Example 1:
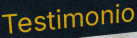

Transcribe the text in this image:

Testimonio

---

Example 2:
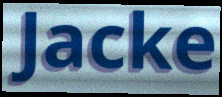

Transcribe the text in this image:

Jacke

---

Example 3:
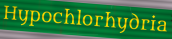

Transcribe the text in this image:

Hypochlorhydria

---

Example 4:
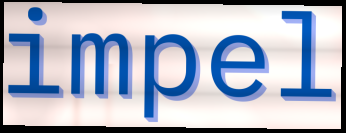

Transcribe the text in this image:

impel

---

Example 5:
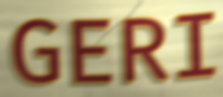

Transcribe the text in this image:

GERI